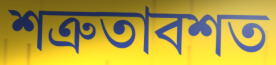
শত্রুতাবশত